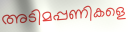
അടിമപ്പണികളെ